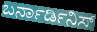
ಬರ್ನಾರ್ಡಿನಿಸ್